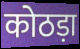
कोठड़ा